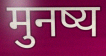
मुनष्य